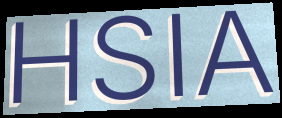
HSIA